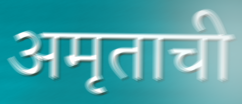
अमृताची